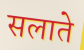
सलाते